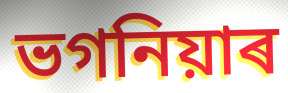
ভগনিয়াৰ